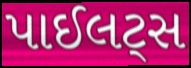
પાઈલટ્સ